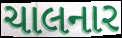
ચાલનાર